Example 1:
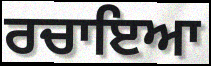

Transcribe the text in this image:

ਰਚਾਇਆ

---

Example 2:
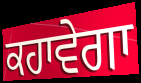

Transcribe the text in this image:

ਕਹਾਵੇਗਾ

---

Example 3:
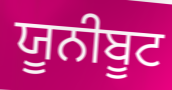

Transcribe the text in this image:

ਯੂਨੀਬੂਟ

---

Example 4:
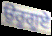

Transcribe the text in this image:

ਉਰੂਗੂਏ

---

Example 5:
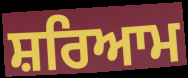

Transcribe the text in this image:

ਸ਼ਰਿਆਮ